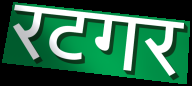
रटगर